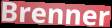
Brenner